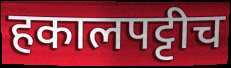
हकालपट्टीच